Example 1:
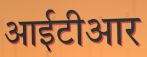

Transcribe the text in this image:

आईटीआर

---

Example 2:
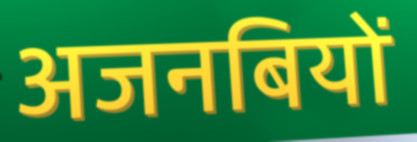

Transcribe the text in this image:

अजनबियों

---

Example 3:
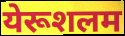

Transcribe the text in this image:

येरूशलम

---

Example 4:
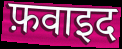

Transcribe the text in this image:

फ़वाइद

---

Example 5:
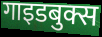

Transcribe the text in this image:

गाइडबुक्स